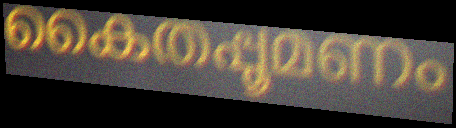
കൈതപ്പൂമണം